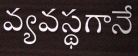
వ్యవస్థగానే